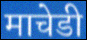
माचेडी